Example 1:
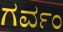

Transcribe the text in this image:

ಗರ್ವಂ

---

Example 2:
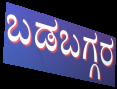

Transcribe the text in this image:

ಬಡಬಗ್ಗರ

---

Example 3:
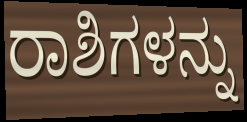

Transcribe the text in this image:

ರಾಶಿಗಳನ್ನು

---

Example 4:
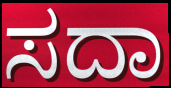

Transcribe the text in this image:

ಸದಾ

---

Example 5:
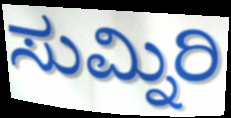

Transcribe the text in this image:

ಸುಮ್ನಿರಿ